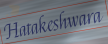
Hatakeshwara